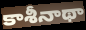
కాశీనాథా